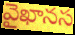
వైఖానస